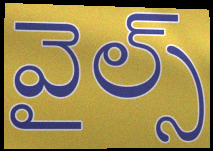
వైల్స్